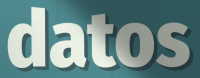
datos